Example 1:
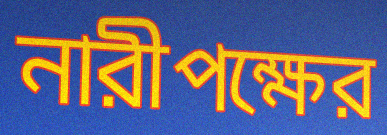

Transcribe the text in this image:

নারীপক্ষের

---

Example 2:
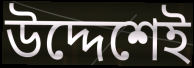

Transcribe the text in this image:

উদ্দেশেই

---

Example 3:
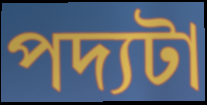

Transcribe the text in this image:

পদ্যটা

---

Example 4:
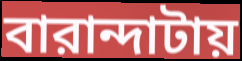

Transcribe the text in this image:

বারান্দাটায়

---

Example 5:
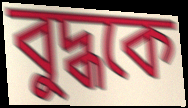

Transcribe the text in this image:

বুদ্ধকে